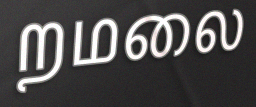
றமலை